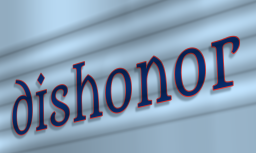
dishonor